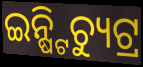
ଇନ୍ଷ୍ଟିଚ୍ୟୁଟ୍ର